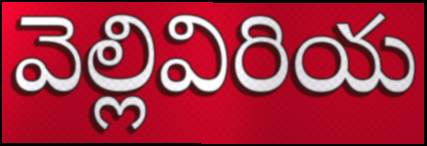
వెల్లివిరియ